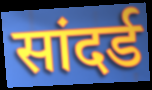
सांदर्ड